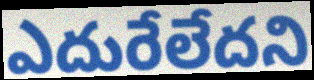
ఎదురేలేదని